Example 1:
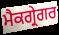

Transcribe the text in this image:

ਮੈਕਗ੍ਰੇਗਰ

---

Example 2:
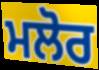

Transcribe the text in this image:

ਮਲੋਰ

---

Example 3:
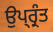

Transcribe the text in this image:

ਉਪ੍ਰ੍ਰੰਤ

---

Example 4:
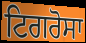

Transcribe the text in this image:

ਟਿਗਰੋਸਾ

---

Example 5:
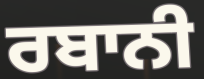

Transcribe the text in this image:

ਰਬਾਨੀ